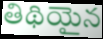
తిథియైన